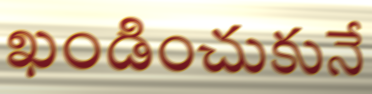
ఖండించుకునే